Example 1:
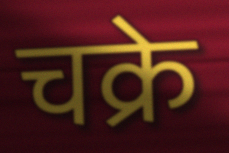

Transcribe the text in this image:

चक्रे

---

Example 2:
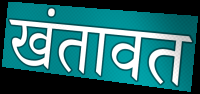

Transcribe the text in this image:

खंतावत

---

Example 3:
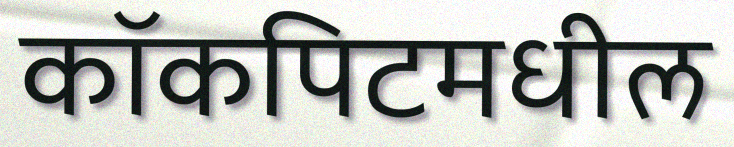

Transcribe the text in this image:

कॉकपिटमधील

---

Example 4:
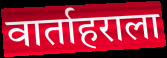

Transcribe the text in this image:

वार्ताहराला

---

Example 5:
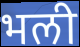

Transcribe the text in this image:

भली